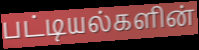
பட்டியல்களின்